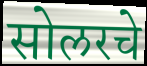
सोलरचे